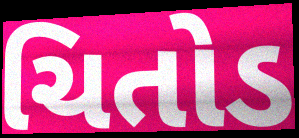
ચિતોડ